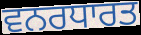
ਵਨਰਧਾਰਤ